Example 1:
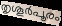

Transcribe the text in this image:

തൃശൂർപൂരം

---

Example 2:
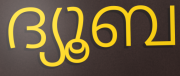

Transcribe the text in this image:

ദ്യൂബ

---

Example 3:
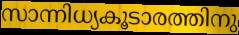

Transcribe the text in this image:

സാന്നിധ്യകൂടാരത്തിനു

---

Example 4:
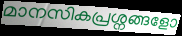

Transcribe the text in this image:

മാനസികപ്രശ്നങ്ങളോ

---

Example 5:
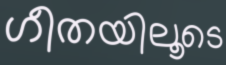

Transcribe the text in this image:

ഗീതയിലൂടെ